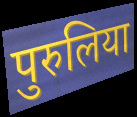
पुरुलिया